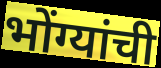
भोंग्यांची